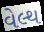
વેલ્થ